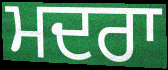
ਮਦਰਾ